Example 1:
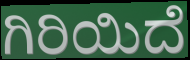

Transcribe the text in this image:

ಗಿರಿಯಿದೆ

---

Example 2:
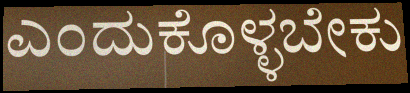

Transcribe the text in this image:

ಎಂದುಕೊಳ್ಳಬೇಕು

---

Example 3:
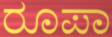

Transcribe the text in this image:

ರೂಪಾ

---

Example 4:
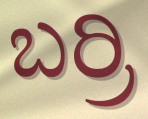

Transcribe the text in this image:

ಬರ್ರಿ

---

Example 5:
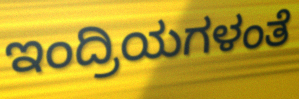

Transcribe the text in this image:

ಇಂದ್ರಿಯಗಳಂತೆ